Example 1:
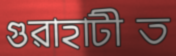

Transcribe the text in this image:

গুৱাহাটীত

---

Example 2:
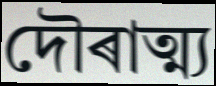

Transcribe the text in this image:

দৌৰাত্ম্য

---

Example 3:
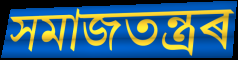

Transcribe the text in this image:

সমাজতন্ত্ৰৰ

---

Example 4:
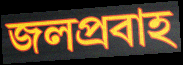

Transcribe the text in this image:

জলপ্ৰবাহ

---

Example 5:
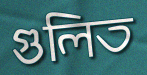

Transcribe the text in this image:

গুলিত